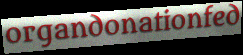
organdonationfed